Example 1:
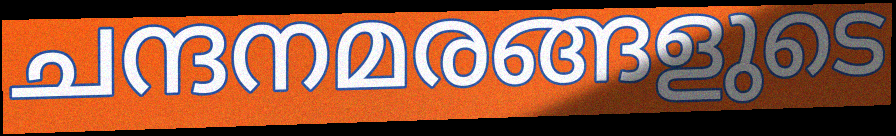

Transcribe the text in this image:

ചന്ദനമരങ്ങളുടെ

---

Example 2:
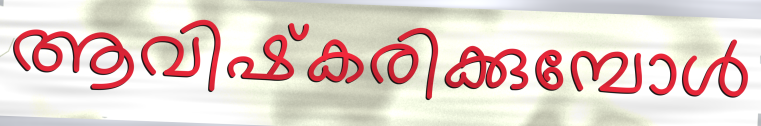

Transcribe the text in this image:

ആവിഷ്‌കരിക്കുമ്പോൾ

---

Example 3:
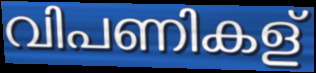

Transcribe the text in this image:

വിപണികള്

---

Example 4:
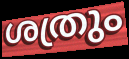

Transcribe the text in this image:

ശത്രും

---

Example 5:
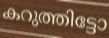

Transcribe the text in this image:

കറുത്തിട്ടോ